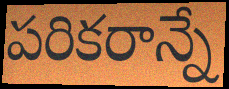
పరికరాన్నే